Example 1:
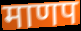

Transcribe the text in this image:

माणप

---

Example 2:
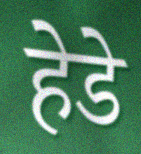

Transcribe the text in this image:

हेडे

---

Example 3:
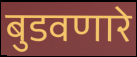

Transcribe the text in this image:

बुडवणारे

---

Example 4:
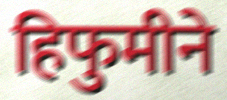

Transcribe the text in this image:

हिफुमीने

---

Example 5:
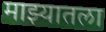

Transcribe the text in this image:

माझ्यातला